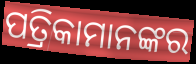
ପତ୍ରିକାମାନଙ୍କର